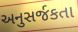
અનુસર્જકતા